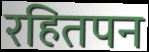
रहितपन